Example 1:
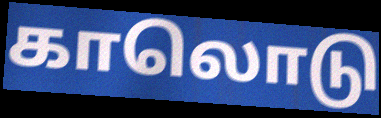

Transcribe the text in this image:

காலொடு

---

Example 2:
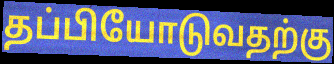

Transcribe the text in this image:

தப்பியோடுவதற்கு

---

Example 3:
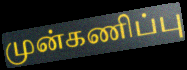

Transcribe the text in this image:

முன்கணிப்பு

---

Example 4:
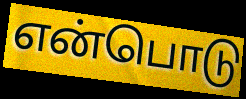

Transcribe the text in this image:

என்பொடு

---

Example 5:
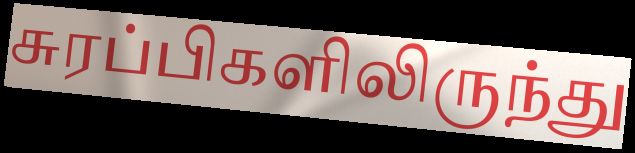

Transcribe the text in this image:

சுரப்பிகளிலிருந்து